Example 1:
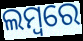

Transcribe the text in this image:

ଲମ୍ବରେ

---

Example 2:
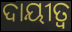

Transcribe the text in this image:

ଦାୟୀତ୍ୱ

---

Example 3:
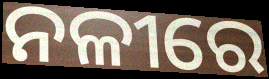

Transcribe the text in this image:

ନଳୀରେ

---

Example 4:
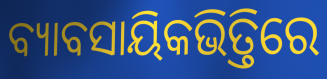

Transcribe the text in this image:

ବ୍ୟାବସାୟିକଭିତ୍ତିରେ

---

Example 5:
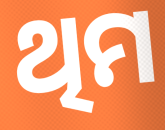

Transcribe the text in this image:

ଥିମ